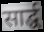
सार्द्ध